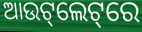
ଆଉଟ୍‌ଲେଟ୍‌ରେ